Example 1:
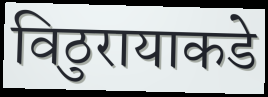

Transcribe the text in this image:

विठुरायाकडे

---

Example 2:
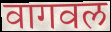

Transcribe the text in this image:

वागवल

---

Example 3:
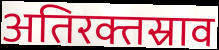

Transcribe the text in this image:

अतिरक्तस्राव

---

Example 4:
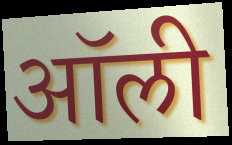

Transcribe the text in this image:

ऑली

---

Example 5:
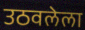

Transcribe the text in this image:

उठवलेला